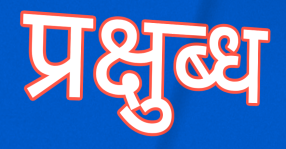
प्रक्षुब्ध